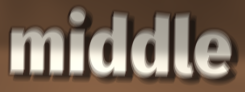
middle